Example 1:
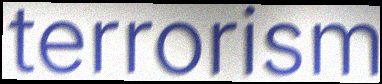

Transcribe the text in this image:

terrorism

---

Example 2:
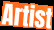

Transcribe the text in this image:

Artist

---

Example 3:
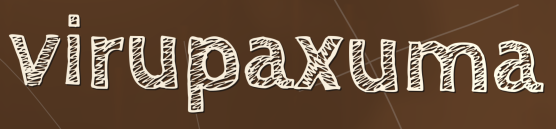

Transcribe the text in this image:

virupaxuma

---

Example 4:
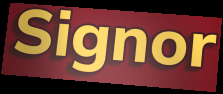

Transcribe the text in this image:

Signor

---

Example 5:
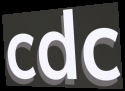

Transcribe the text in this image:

cdc